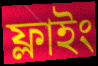
ফ্লাইং